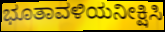
ಭೂತಾವಳಿಯನೀಕ್ಷಿಸಿ